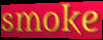
smoke